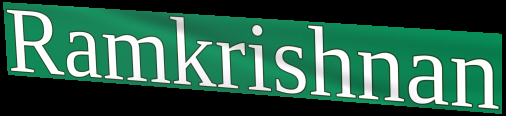
Ramkrishnan